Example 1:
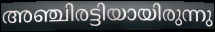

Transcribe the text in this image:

അഞ്ചിരട്ടിയായിരുന്നു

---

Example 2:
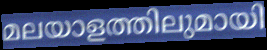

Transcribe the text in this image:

മലയാളത്തിലുമായി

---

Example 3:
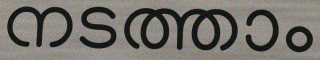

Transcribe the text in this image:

നടത്താം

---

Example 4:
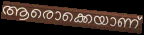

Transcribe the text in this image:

ആരൊക്കെയാണ്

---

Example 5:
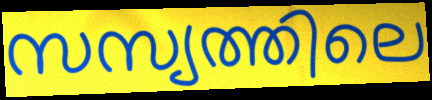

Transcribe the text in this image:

സസ്യത്തിലെ